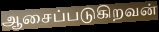
ஆசைப்படுகிறவன்